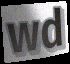
wd